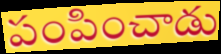
పంపించాడు